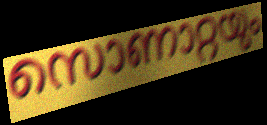
സൊണാറ്റയും